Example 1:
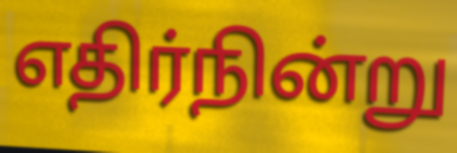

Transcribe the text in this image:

எதிர்நின்று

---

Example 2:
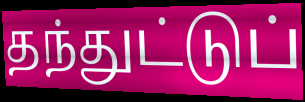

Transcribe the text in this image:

தந்துட்டுப்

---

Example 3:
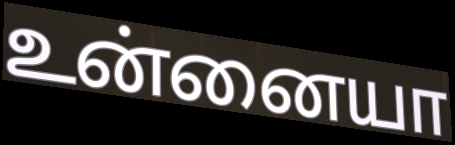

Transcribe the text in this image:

உன்னையா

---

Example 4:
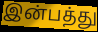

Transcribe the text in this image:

இன்பத்து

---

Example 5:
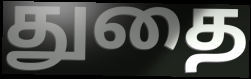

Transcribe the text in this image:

துதை